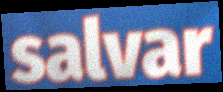
salvar